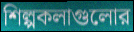
শিল্পকলাগুলোর